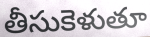
తీసుకెళుతూ